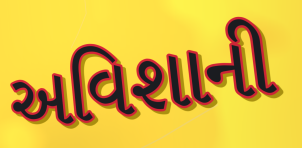
અવિશાની